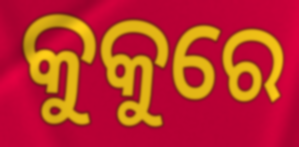
କୁକୁରେ